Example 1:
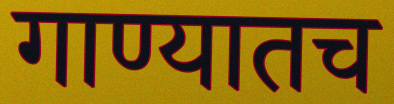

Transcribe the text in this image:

गाण्यातच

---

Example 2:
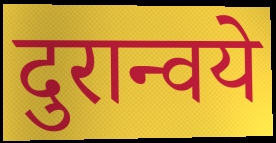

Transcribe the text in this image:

दुरान्वये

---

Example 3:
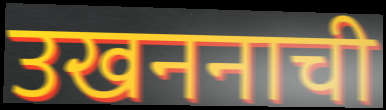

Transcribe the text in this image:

उखननाची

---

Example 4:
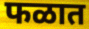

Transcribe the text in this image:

फळात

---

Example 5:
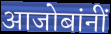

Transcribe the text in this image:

आजोबांनीं